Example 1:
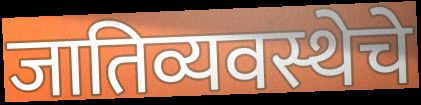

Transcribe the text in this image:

जातिव्यवस्थेचे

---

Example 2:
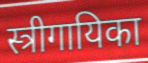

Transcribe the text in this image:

स्त्रीगायिका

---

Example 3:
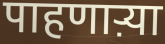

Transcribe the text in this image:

पाहणाऱ्‍या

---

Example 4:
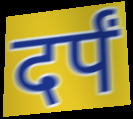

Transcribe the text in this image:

दर्पं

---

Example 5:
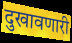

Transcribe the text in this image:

दुखावणारी